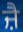
ਜ਼ੈ